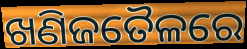
ଖଣିଜତୈଳରେ